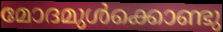
മോദമുൾക്കൊണ്ടു